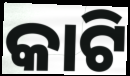
କାଟି